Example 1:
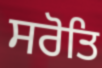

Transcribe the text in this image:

ਸਰੋਤਿ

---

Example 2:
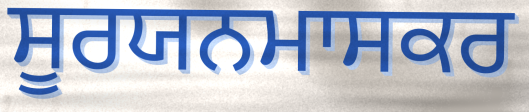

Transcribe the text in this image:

ਸੂਰਯਨਮਾਸਕਰ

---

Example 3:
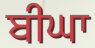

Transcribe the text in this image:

ਬੀਘਾ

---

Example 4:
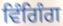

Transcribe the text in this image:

ਵਿੰਗਿੰਗ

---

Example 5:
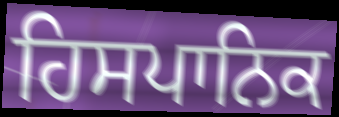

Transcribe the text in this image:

ਹਿਸਪਾਨਿਕ